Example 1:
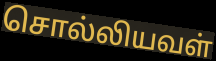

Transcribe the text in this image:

சொல்லியவள்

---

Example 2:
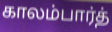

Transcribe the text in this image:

காலம்பார்த்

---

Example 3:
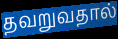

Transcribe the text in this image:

தவறுவதால்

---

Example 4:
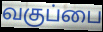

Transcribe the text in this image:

வகுப்பை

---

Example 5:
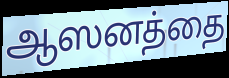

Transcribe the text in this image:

ஆஸனத்தை